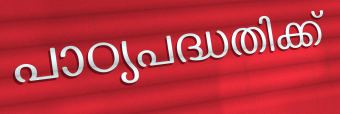
പാഠ്യപദ്ധതിക്ക്